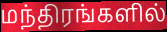
மந்திரங்களில்